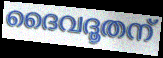
ദൈവദൂതന്